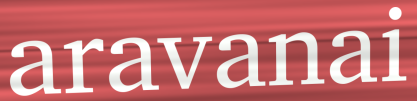
aravanai